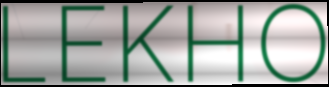
LEKHO